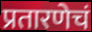
प्रतारणेचं